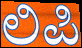
ಲಿಪಿ